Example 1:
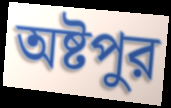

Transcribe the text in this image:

অষ্টপুর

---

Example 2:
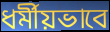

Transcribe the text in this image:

ধর্মীয়ভাবে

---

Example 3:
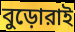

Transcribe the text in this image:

বুড়োরাই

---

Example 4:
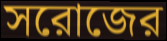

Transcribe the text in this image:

সরোজের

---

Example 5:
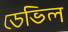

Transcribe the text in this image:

ডেভিল